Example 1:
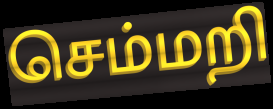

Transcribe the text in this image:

செம்மறி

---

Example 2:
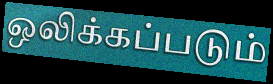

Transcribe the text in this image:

ஒலிக்கப்படும்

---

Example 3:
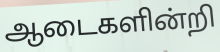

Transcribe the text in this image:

ஆடைகளின்றி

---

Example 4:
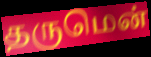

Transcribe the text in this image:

தருமென்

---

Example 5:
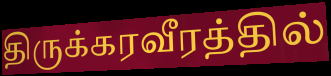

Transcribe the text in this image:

திருக்கரவீரத்தில்